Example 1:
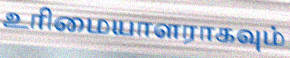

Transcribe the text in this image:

உரிமையாளராகவும்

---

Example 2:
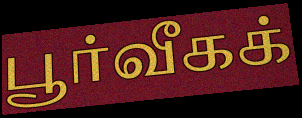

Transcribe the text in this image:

பூர்வீகக்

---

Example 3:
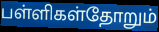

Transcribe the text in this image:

பள்ளிகள்தோறும்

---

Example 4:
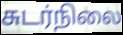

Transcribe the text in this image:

சுடர்நிலை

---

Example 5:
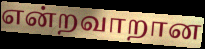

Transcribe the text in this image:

என்றவாறான